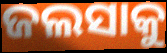
ଜଲସାକୁ